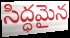
సిద్ధమైన